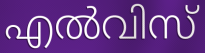
എൽവിസ്